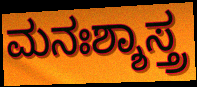
ಮನಃಶ್ಶಾಸ್ತ್ರ